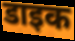
डाइक